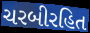
ચરબીરહિત